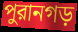
পুরানগড়